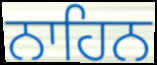
ਨਾਹਿਨ